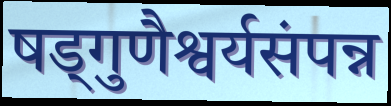
षड्‌गुणैश्वर्यसंपन्न